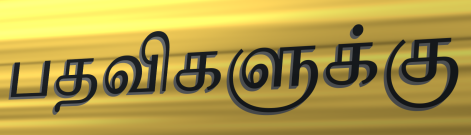
பதவிகளுக்கு